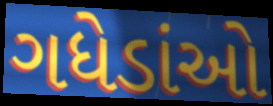
ગધેડાંઓ